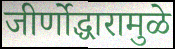
जीर्णोद्धारामुळे